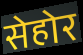
सेहोर